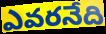
ఎవరనేది